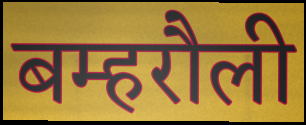
बम्हरौली